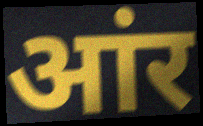
आंर